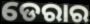
ଡେରାର